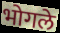
भोगले